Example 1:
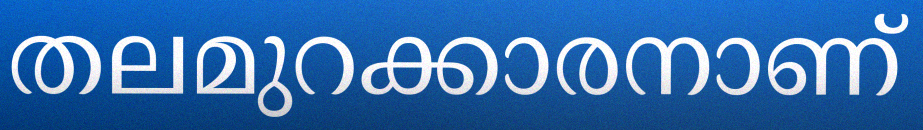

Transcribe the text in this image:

തലമുറക്കാരനാണ്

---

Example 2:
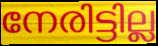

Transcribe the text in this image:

നേരിട്ടില്ല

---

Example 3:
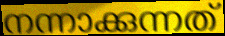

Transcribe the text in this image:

നന്നാക്കുന്നത്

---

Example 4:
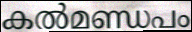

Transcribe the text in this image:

കൽമണ്ഡപം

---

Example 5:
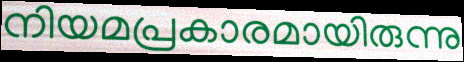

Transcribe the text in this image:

നിയമപ്രകാരമായിരുന്നു